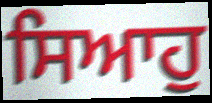
ਸਿਆਹੁ